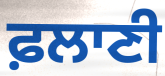
ਫ਼ਲਾਣੀ